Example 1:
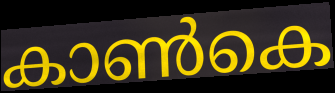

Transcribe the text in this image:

കാൺകെ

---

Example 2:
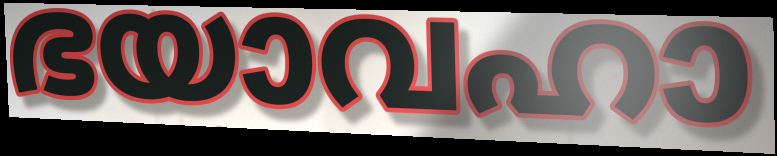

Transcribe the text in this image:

ഭയാവഹാ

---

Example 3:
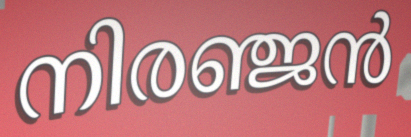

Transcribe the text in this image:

നിരഞ്ജൻ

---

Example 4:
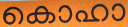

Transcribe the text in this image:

കൊഹാ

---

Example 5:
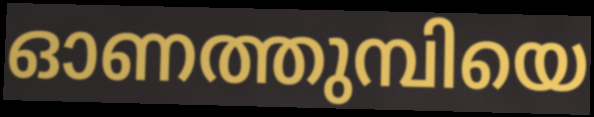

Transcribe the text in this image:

ഓണത്തുമ്പിയെ